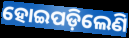
ହୋଇପଡ଼ିଲେଣି